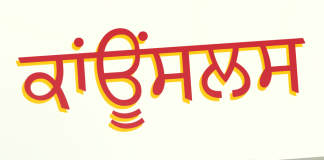
ਕਾਂਊਂਸਲਸ